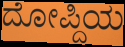
ದೋಪ್ದಿಯ